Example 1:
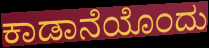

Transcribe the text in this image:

ಕಾಡಾನೆಯೊಂದು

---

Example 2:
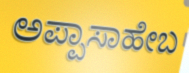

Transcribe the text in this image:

ಅಪ್ಪಾಸಾಹೇಬ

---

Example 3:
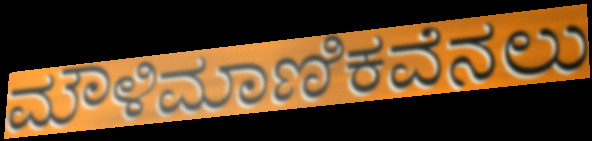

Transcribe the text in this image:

ಮೌಳಿಮಾಣಿಕವೆನಲು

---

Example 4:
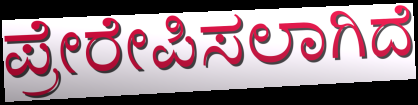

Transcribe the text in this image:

ಪ್ರೇರೇಪಿಸಲಾಗಿದೆ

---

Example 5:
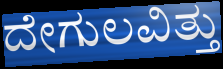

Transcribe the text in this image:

ದೇಗುಲವಿತ್ತು